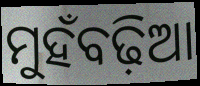
ମୁହଁବଢ଼ିଆ